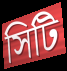
সিটি